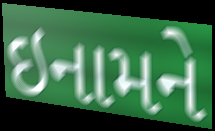
ઇનામને